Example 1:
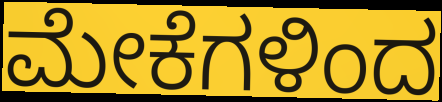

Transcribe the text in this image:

ಮೇಕೆಗಳಿಂದ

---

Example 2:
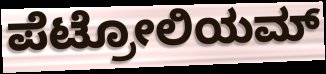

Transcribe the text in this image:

ಪೆಟ್ರೋಲಿಯಮ್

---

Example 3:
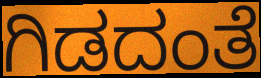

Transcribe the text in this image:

ಗಿಡದಂತೆ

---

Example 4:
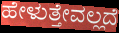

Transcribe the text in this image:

ಹೇಳುತ್ತೇವಲ್ಲದೆ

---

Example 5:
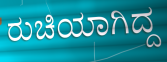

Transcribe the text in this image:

ರುಚಿಯಾಗಿದ್ದ